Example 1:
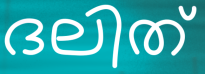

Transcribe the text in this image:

ദലിത്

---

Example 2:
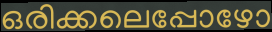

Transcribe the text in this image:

ഒരിക്കലെപ്പോഴോ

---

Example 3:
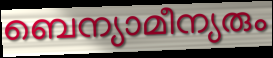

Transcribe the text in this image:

ബെന്യാമീന്യരും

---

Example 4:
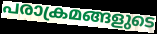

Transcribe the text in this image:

പരാക്രമങ്ങളുടെ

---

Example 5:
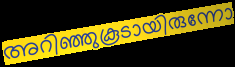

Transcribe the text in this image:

അറിഞ്ഞുകൂടായിരുന്നോ